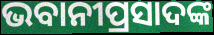
ଭବାନୀପ୍ରସାଦଙ୍କ